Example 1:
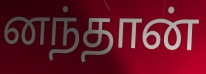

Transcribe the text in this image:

னந்தான்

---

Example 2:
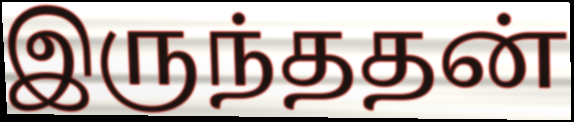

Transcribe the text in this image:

இருந்ததன்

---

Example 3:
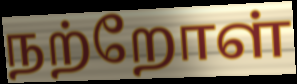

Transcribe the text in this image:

நற்றோள்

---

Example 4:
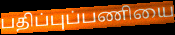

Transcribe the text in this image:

பதிப்புப்பணியை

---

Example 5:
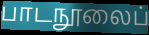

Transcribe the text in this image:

பாடநூலைப்